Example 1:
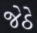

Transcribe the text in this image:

જેઠે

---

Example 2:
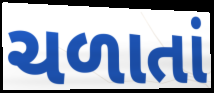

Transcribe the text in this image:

ચળાતાં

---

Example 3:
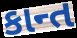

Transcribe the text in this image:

કાન્ત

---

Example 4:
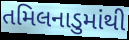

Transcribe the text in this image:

તમિલનાડુમાંથી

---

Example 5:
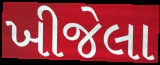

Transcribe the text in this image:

ખીજેલા